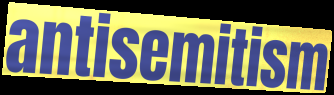
antisemitism